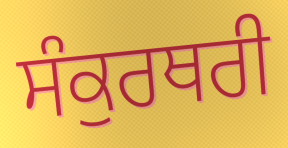
ਸੰਕੁਰਥਰੀ